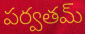
పర్వతమ్